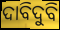
ଦାବିଦୁବି